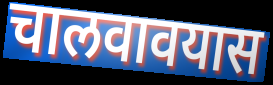
चालवावयास